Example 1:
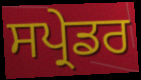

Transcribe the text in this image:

ਸਪ੍ਰੇਡਰ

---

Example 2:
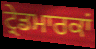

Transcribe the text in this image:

ਟ੍ਰੇਡਮਾਰਕਾਂ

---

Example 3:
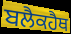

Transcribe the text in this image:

ਬਲੈਕਹੈਥ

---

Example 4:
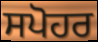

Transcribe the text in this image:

ਸਪੋਹਰ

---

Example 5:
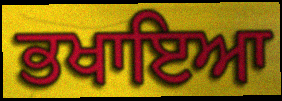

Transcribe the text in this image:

ਭਖਾਇਆ